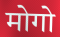
मोगो